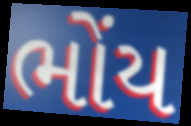
ભોંય